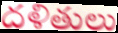
దళితులు